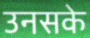
उनसके